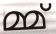
മ്മ്